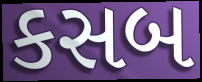
કસબ